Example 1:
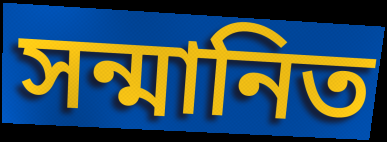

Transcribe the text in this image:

সন্মানিত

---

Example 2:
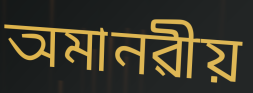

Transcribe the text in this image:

অমানৱীয়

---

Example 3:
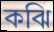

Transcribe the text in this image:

কঝি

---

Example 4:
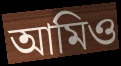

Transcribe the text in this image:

আমিও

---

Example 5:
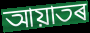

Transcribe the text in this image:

আয়াতৰ